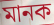
মানক